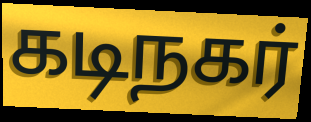
கடிநகர்